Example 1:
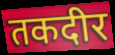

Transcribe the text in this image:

तकदीर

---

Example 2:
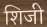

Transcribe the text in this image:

शिजी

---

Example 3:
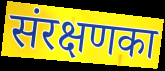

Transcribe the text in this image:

संरक्षणका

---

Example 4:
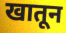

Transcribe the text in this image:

खातून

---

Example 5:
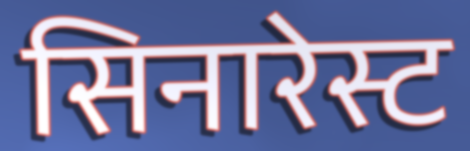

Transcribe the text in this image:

सिनारेस्ट